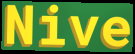
Nive